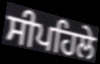
ਸੀਪਹਿਲੇ